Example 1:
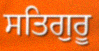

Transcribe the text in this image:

ਸਤਿਗੁਰੂ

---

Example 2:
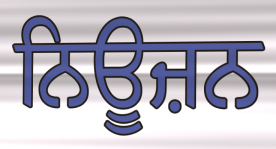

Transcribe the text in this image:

ਨਿਊਜ਼ਨ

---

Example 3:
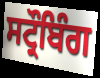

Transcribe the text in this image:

ਸਟ੍ਰੌਬਿੰਗ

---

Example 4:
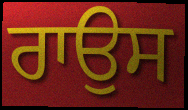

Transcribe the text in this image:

ਰਾਉਸ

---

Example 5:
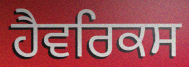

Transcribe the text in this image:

ਹੈਵਰਿਕਸ